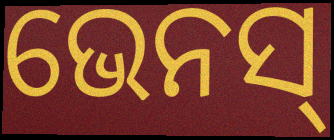
ଭେନସ୍